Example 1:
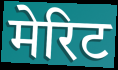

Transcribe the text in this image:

मेरिट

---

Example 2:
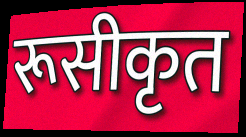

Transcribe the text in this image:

रूसीकृत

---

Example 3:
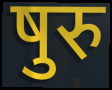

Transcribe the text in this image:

षुरु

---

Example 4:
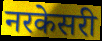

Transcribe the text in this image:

नरकेसरी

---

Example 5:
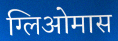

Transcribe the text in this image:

ग्लिओमास